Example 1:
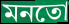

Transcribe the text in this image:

মনতো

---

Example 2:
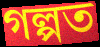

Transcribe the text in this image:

গল্পত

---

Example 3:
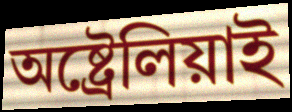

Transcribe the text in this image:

অষ্ট্ৰেলিয়াই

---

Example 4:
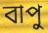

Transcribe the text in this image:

বাপু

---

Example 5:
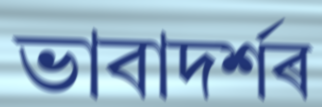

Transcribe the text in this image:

ভাবাদৰ্শৰ